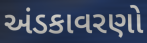
અંડકાવરણો